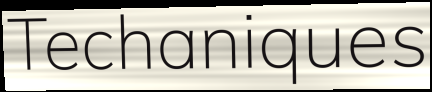
Techaniques